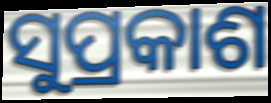
ସୁପ୍ରକାଶ